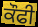
ਕੌਫੀ